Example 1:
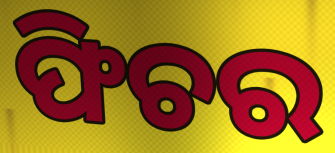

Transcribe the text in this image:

ଫିଚର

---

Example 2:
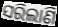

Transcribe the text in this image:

ସରିଲାଣି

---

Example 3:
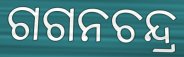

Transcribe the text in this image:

ଗଗନଚନ୍ଦ୍ର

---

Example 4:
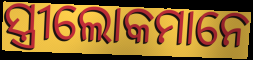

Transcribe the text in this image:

ସ୍ତ୍ରୀଲୋକମାନେ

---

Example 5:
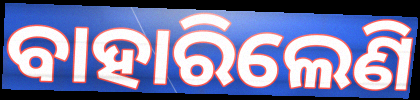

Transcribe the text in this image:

ବାହାରିଲେଣି